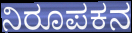
ನಿರೂಪಕನ